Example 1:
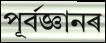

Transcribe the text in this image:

পূৰ্বজ্ঞানৰ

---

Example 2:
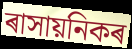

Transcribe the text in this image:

ৰাসায়নিকৰ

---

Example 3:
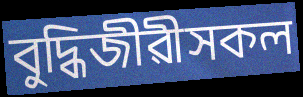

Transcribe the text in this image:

বুদ্ধিজীৱীসকল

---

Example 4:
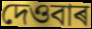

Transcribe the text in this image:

দেওবাৰ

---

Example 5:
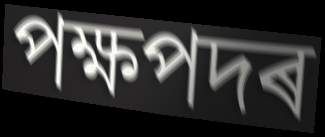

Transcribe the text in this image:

পক্ষপদৰ